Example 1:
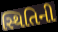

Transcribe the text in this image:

સ્થિતિની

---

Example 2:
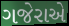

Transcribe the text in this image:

ગજેરાએ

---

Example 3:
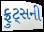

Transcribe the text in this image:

ફ્રુટ્સની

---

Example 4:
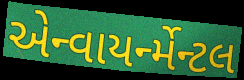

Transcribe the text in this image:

એન્વાયર્ન્મેન્ટલ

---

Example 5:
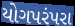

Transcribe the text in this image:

યોગપરંપરા